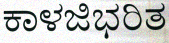
ಕಾಳಜಿಭರಿತ